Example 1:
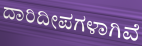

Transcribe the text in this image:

ದಾರಿದೀಪಗಳಾಗಿವೆ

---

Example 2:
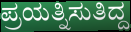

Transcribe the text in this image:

ಪ್ರಯತ್ನಿಸುತಿದ್ದ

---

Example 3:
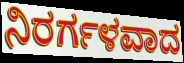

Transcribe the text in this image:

ನಿರರ್ಗಳವಾದ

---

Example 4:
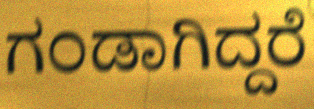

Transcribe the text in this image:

ಗಂಡಾಗಿದ್ದರೆ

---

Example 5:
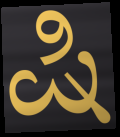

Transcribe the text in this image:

ಷಿ